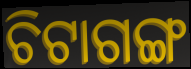
ଚିଟାଗଙ୍ଗ